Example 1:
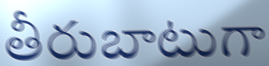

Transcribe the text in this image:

తీరుబాటుగా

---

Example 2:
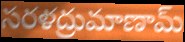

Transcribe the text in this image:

సరళద్రుమాణామ్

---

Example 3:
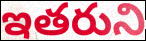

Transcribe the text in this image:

ఇతరుని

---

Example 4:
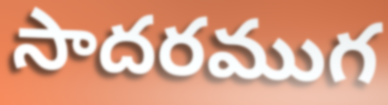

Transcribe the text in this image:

సాదరముగ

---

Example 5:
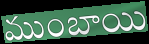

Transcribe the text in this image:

ముంబాయి